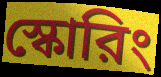
স্কোরিং